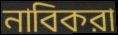
নাবিকরা